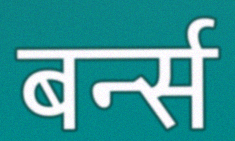
बर्न्स